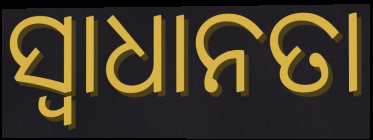
ସ୍ୱାଧାନତା